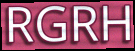
RGRH